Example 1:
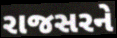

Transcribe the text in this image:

રાજસરને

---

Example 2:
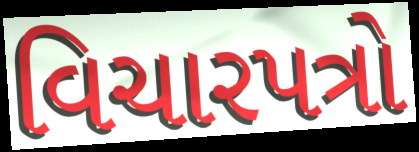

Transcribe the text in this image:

વિચારપત્રો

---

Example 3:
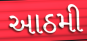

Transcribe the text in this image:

આઠમી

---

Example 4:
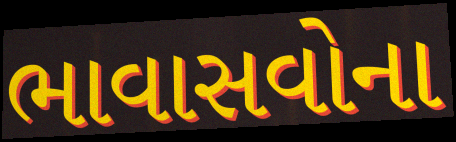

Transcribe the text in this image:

ભાવાસવોના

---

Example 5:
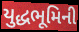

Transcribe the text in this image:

યુદ્ધભૂમિની